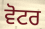
ਵੋਟਰ